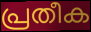
പ്രതീക